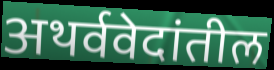
अथर्ववेदांतील